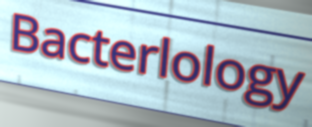
Bacterlology